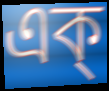
এক্